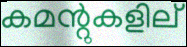
കമന്റുകളില്